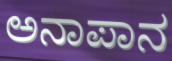
ಅನಾಪಾನ